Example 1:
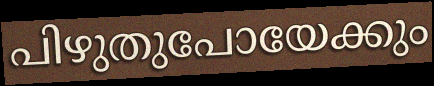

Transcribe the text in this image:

പിഴുതുപോയേക്കും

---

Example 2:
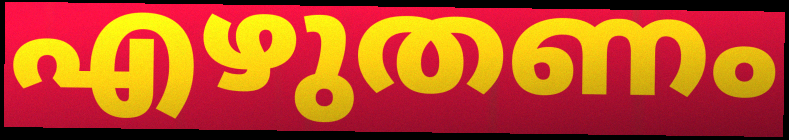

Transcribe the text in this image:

എഴുതണം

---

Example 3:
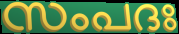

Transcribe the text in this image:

സംപദഃ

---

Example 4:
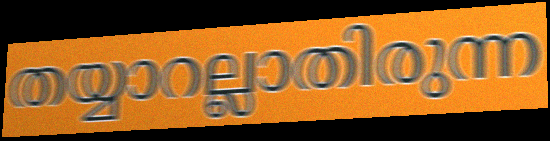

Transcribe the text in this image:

തയ്യാറല്ലാതിരുന്ന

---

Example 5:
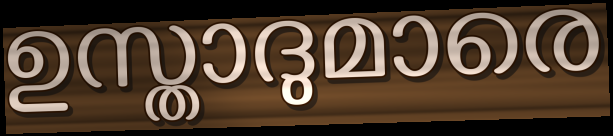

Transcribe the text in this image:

ഉസ്താദുമാരെ